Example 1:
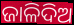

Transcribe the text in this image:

ଜାଳିଦିଅ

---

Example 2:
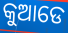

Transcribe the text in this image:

କୁଆଡେ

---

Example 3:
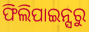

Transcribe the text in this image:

ଫିଲିପାଇନ୍ସରୁ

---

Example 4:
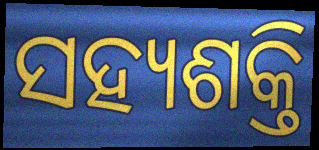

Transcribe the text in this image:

ସହ୍ୟଶକ୍ତି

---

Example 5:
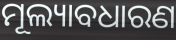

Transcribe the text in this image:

ମୂଲ୍ୟାବଧାରଣ